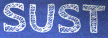
SUST